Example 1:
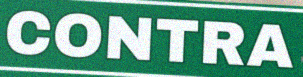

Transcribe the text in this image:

CONTRA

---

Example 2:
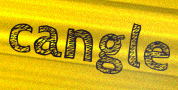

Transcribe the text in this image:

cangle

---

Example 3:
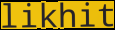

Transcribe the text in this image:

likhit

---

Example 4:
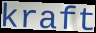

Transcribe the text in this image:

kraft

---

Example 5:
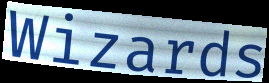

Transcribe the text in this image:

Wizards